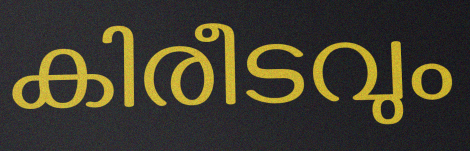
കിരീടവും